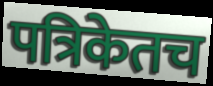
पत्रिकेतच